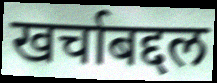
खर्चाबद्दल